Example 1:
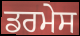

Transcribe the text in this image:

ਡਰਮੇਸ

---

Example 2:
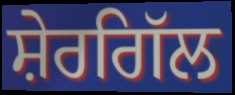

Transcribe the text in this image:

ਸ਼ੇਰਗਿੱਲ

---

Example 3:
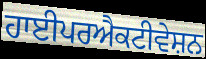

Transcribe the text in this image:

ਹਾਈਪਰਐਕਟੀਵੇਸ਼ਨ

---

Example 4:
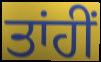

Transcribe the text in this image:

ਤਾਂਹੀਂ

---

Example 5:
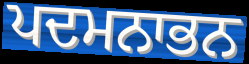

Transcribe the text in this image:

ਪਦਮਨਾਭਨ